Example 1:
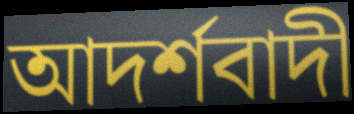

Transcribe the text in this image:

আদর্শবাদী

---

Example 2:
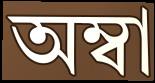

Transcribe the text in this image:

অম্বা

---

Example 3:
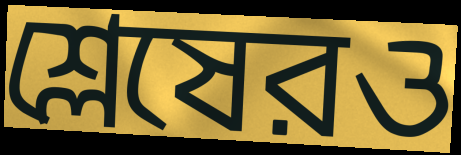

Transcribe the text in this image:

শ্লেষেরও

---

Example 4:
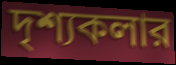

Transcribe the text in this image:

দৃশ্যকলার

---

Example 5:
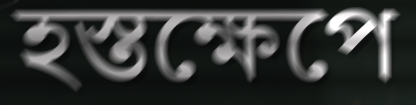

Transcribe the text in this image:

হস্তক্ষেপে